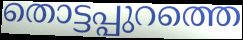
തൊട്ടപ്പുറത്തെ